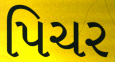
પિચર